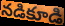
నడికూడి